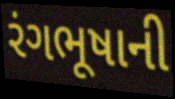
રંગભૂષાની